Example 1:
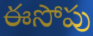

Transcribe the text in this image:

ఈసోపు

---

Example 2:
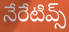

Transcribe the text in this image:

నేరేటివ్స్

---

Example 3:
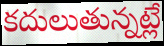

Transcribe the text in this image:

కదులుతున్నట్లే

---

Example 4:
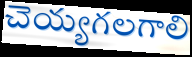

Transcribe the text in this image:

చెయ్యగలగాలి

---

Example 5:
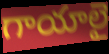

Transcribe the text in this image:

గాయాలై